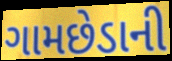
ગામછેડાની